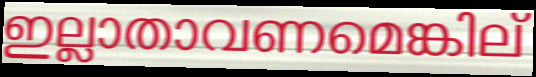
ഇല്ലാതാവണമെങ്കില്